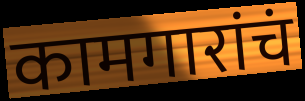
कामगारांचं